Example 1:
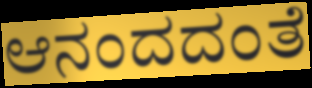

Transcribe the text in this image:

ಆನಂದದಂತೆ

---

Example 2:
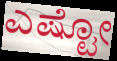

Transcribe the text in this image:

ಎಷ್ಟೋ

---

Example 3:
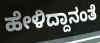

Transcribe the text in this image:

ಹೇಳಿದ್ದಾನಂತೆ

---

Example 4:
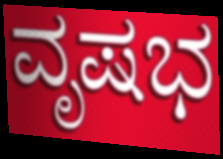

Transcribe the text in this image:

ವೃಷಭ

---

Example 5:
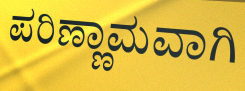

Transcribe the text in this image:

ಪರಿಣ್ಣಾಮವಾಗಿ